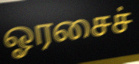
ஓரசைச்